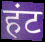
हंट